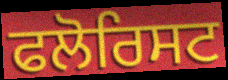
ਫਲੋਰਿਸਟ